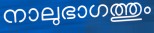
നാലുഭാഗത്തും